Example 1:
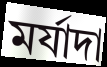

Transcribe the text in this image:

মর্যাদা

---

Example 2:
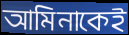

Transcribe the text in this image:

আমিনাকেই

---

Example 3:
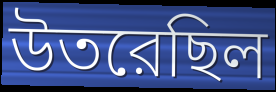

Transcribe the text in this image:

উতরেছিল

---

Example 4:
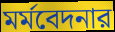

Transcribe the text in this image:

মর্মবেদনার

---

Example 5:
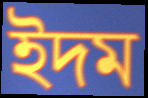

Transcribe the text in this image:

ইদম